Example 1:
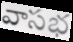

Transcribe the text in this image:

వాసభ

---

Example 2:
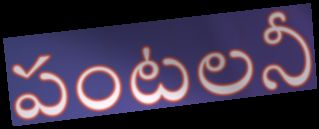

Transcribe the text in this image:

పంటలనీ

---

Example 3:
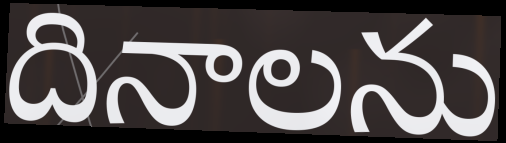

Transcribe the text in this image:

దినాలను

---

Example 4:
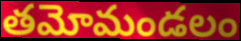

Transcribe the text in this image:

తమోమండలం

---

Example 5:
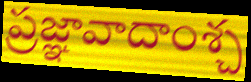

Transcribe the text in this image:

ప్రజ్ఞావాదాంశ్చ